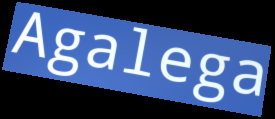
Agalega